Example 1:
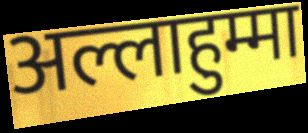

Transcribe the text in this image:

अल्लाहुम्मा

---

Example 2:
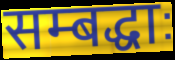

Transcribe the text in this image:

सम्बद्धाः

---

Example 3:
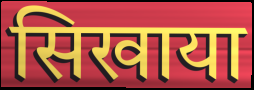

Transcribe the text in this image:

सिखाया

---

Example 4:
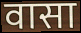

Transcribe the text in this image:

वासा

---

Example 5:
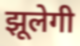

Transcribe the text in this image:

झूलेगी